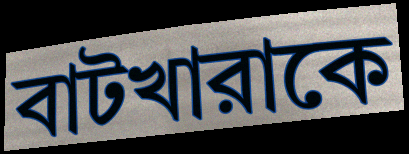
বাটখারাকে